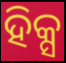
ହିକ୍ସ